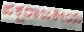
ಪಕ್ಷರಾಜಕೀಯ